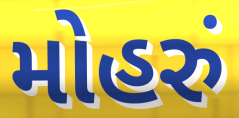
મોહરું